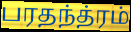
பரதந்த்ரம்